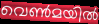
വെൺമയിൽ